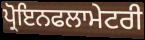
ਪ੍ਰੋਇਨਫਲਾਮੇਟਰੀ